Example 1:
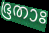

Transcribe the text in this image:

ഭൂതാഃ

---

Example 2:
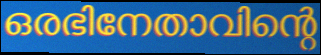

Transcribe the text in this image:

ഒരഭിനേതാവിന്റെ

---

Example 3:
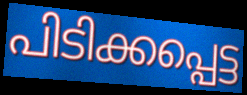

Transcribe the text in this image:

പിടിക്കപ്പെട്ട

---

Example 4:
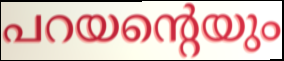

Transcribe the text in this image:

പറയന്റെയും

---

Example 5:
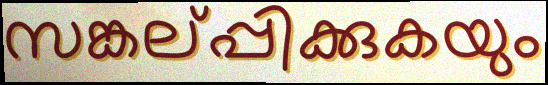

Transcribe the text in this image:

സങ്കല്പ്പിക്കുകയും